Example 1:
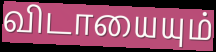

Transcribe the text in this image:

விடாயையும்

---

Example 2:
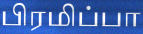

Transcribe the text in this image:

பிரமிப்பா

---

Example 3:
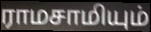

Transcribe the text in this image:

ராமசாமியும்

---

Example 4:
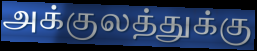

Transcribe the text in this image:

அக்குலத்துக்கு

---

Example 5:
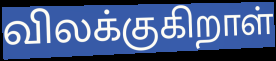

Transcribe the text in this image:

விலக்குகிறாள்